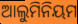
ଆଲୁମିନିୟମ